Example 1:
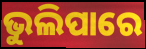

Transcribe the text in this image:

ଭୁଲିପାରେ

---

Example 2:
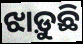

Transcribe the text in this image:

ଝାଡ଼ୁଛି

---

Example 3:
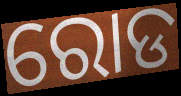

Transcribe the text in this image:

ରୋଡ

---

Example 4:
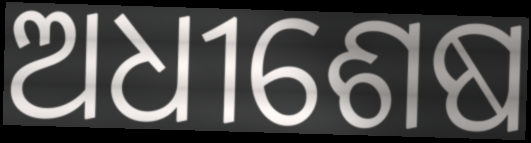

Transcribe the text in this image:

ଅଧୀଶେଷ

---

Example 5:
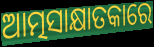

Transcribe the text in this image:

ଆତ୍ମସାକ୍ଷାତକାରେ